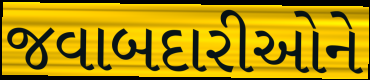
જવાબદારીઓને